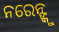
ନରେନ୍ଙ୍କୁ